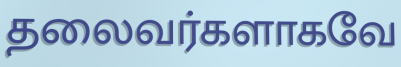
தலைவர்களாகவே